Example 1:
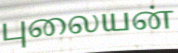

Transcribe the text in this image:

புலையன்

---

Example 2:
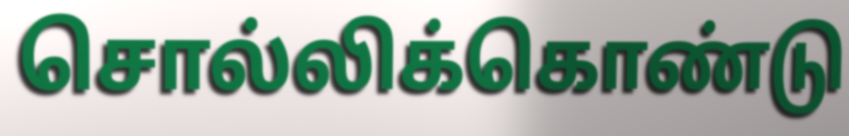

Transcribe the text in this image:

சொல்லிக்கொண்டு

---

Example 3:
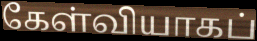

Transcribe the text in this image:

கேள்வியாகப்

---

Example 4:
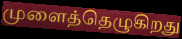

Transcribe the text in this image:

முளைத்தெழுகிறது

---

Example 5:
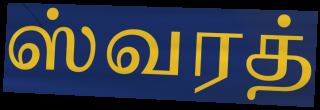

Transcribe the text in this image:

ஸ்வரத்